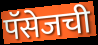
पॅसेजची